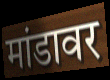
मांडावर